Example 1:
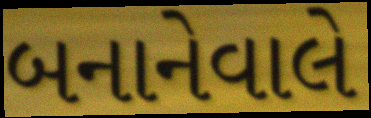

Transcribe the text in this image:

બનાનેવાલે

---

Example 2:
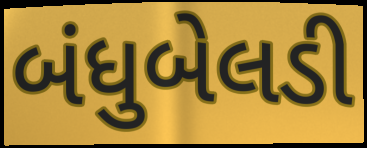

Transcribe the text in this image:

બંધુબેલડી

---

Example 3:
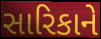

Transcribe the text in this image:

સારિકાને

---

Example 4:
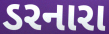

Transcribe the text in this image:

ડરનારા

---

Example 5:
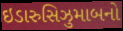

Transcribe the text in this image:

ઇડારુસિઝુમાબનો